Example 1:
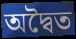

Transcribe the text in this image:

অদ্বৈত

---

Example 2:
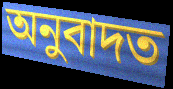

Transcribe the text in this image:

অনুবাদত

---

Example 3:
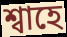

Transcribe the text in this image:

শ্বাহে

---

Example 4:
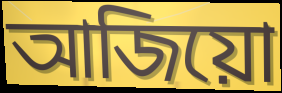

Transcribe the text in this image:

আজিয়ো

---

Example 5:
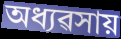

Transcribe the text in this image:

অধ্যৱসায়